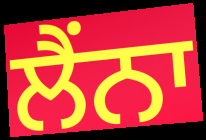
ਲੈਂਨਾ